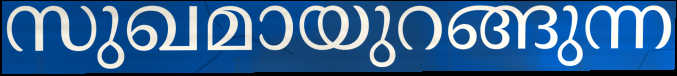
സുഖമായുറങ്ങുന്ന